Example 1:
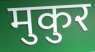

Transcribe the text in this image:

मुकुर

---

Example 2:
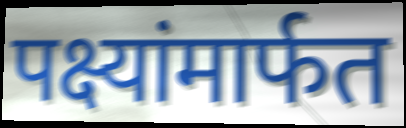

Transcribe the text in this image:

पक्ष्यांमार्फत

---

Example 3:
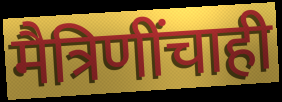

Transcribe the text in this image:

मैत्रिणींचाही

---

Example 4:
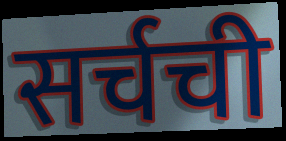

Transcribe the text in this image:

सर्चची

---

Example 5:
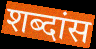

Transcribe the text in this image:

शब्दांस